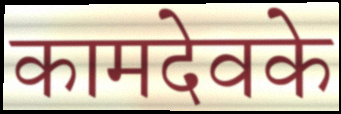
कामदेवके